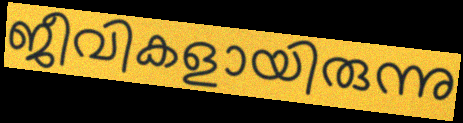
ജീവികളായിരുന്നു